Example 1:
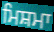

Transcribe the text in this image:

ਮਿਸ਼ਮਾ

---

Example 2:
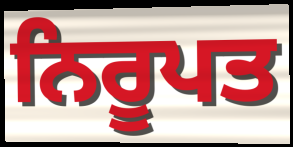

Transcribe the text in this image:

ਨਿਰੂਪਤ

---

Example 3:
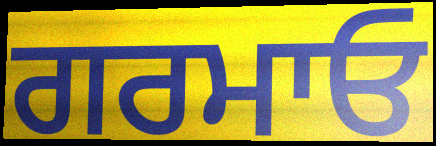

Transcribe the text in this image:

ਗਰਮਾਓ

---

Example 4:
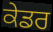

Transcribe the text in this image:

ਕੇਡਰ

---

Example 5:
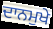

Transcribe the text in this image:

ਦਾਨਮੁਖੇ